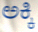
ಅಕ್ಕಿ